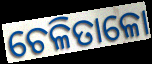
ଚେଳିତାଳୋ